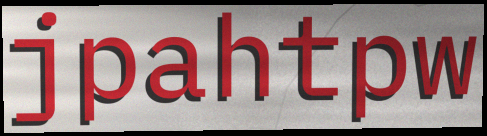
jpahtpw